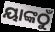
ୟାଙ୍କଠୁଁ